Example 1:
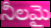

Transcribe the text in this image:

నీలమై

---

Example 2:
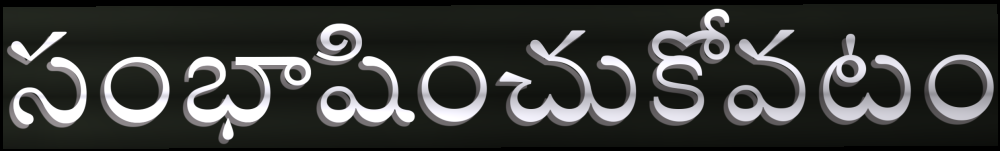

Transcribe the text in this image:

సంభాషించుకోవటం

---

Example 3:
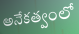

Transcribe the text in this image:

అనేకత్వంలో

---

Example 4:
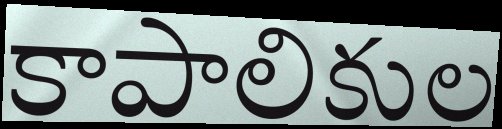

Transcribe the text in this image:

కాపాలికుల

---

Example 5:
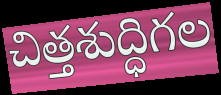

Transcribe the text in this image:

చిత్తశుద్ధిగల